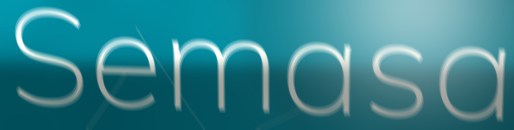
Semasa